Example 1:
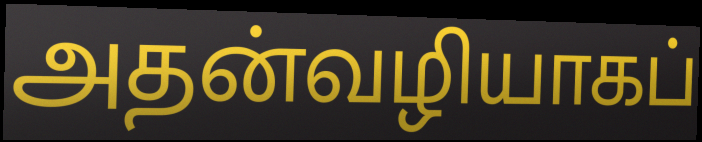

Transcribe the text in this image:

அதன்வழியாகப்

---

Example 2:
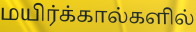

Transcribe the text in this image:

மயிர்க்கால்களில்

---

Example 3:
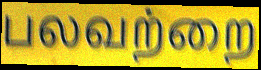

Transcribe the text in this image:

பலவற்றை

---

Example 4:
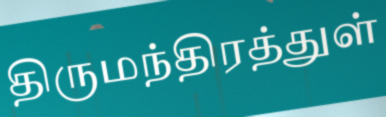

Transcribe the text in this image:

திருமந்திரத்துள்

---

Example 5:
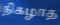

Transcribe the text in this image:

நிகழாத